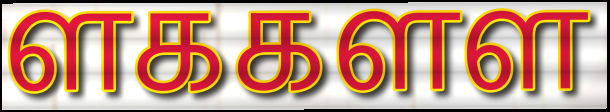
ளககளள